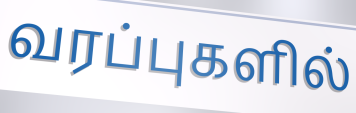
வரப்புகளில்